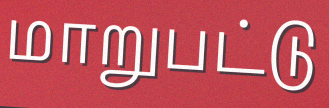
மாறுபட்டு